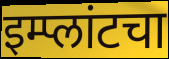
इम्प्लांटचा